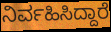
ನಿರ್ವಹಿಸಿದ್ದಾರೆ